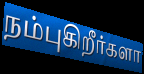
நம்புகிறீர்களா